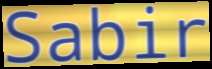
Sabir